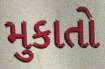
મુકાતો